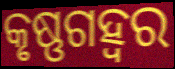
କୃଷ୍ଣଗହ୍ୱର